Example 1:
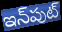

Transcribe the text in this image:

ఇన్‌పుట్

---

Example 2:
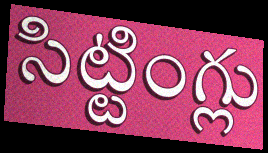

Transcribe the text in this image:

సిట్టింగ్లు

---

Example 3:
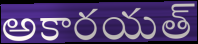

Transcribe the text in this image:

అకారయత్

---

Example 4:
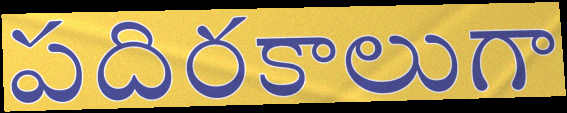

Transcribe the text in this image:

పదిరకాలుగా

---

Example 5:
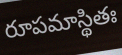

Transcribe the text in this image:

రూపమాస్థితః